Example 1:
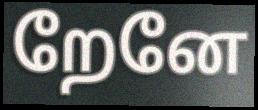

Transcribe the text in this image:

றேனே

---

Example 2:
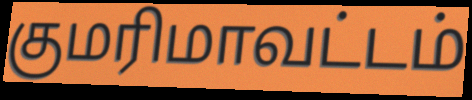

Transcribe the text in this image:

குமரிமாவட்டம்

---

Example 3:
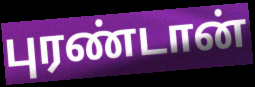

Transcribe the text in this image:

புரண்டான்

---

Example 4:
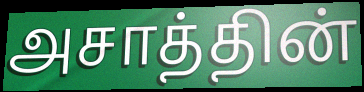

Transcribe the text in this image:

அசாத்தின்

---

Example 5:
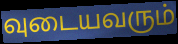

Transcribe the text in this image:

வுடையவரும்